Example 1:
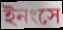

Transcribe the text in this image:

ইনংসে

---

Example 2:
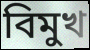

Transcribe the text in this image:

বিমুখ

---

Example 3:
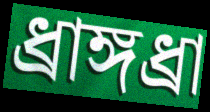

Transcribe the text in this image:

ধ্রাঙ্গধ্রা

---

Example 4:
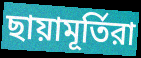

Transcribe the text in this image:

ছায়ামূর্তিরা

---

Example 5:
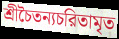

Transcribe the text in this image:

শ্রীচৈতন্যচরিতামৃত